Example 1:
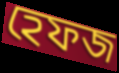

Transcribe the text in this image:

হেফজ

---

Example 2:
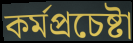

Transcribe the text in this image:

কর্মপ্রচেষ্টা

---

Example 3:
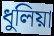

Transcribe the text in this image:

ধুলিয়া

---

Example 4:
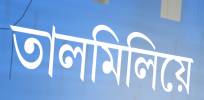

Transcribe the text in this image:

তালমিলিয়ে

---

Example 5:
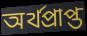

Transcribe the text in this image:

অর্থপ্রাপ্ত